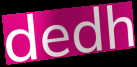
dedh